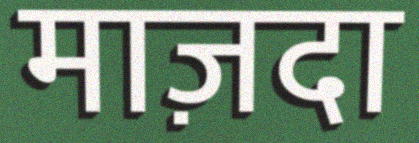
माज़दा